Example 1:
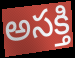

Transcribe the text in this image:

అసక్తి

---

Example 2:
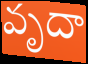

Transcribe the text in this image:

వృదా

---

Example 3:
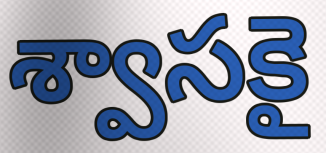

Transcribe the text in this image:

శ్వాసకై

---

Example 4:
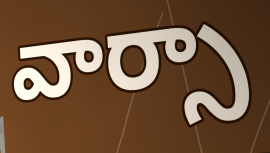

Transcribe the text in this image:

వార్సా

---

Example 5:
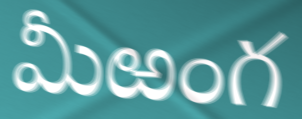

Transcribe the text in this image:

మీఱంగ